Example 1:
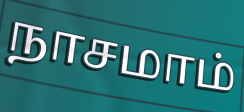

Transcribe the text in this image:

நாசமாம்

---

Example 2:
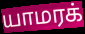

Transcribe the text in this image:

யாமரக்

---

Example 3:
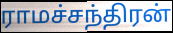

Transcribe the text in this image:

ராமச்சந்திரன்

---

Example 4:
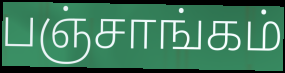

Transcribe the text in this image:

பஞ்சாங்கம்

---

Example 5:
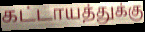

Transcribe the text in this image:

கட்டாயத்துக்கு